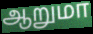
ஆறுமா